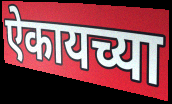
ऐकायच्या